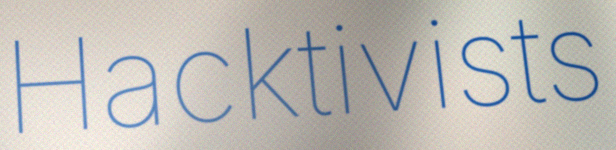
Hacktivists